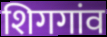
शिगगांव